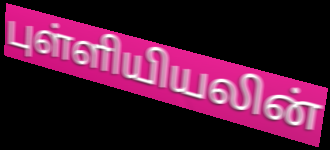
புள்ளியியலின்